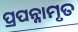
ପ୍ରପନ୍ନାମୃତ